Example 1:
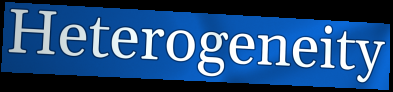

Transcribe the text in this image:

Heterogeneity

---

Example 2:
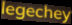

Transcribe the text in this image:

legechey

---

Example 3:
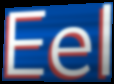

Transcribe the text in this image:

Eel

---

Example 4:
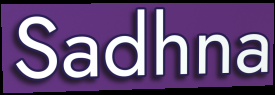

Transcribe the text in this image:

Sadhna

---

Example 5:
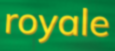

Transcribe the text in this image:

royale